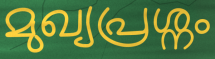
മുഖ്യപ്രശ്നം